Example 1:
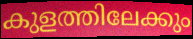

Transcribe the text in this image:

കുളത്തിലേക്കും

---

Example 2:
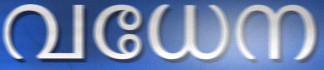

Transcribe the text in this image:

വധേന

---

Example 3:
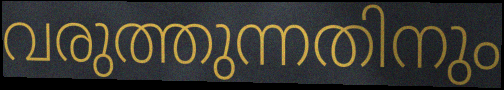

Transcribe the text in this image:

വരുത്തുന്നതിനും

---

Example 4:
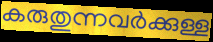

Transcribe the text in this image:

കരുതുന്നവർക്കുള്ള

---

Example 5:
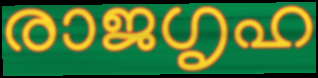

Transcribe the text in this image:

രാജഗൃഹ